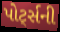
પોર્ટ્સની